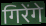
गिरेंगे